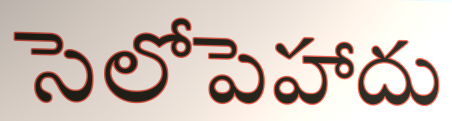
సెలోపెహాదు